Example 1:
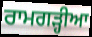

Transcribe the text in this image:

ਰਾਮਗਡ਼੍ਹੀਆ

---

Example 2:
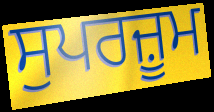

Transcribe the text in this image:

ਸੁਪਰਜ਼ੂਮ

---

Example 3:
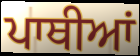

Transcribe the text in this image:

ਪਾਥੀਆਂ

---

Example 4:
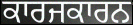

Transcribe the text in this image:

ਕਾਰਜਕਾਰਨ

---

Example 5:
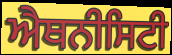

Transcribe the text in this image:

ਐਥਨੀਸਿਟੀ